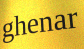
ghenar